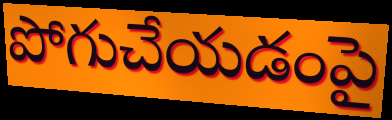
పోగుచేయడంపై